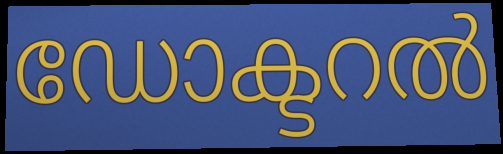
ഡോക്ടറൽ